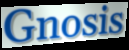
Gnosis